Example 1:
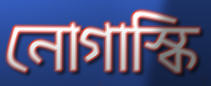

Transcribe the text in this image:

নোগাস্কি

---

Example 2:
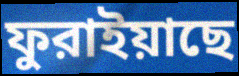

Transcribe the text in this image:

ফুরাইয়াছে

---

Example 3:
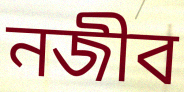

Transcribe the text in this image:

নজীব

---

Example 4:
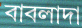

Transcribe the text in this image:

বাবলাদা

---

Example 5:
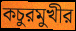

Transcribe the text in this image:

কচুরমুখীর